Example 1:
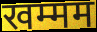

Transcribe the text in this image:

खम्मम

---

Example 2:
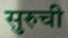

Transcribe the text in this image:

सुरुची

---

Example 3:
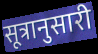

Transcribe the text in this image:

सूत्रानुसारी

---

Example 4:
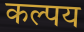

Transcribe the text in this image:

कल्पय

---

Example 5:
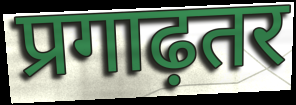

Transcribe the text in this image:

प्रगाढ़तर